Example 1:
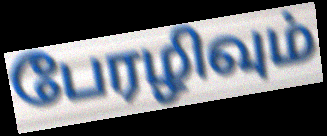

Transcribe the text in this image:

பேரழிவும்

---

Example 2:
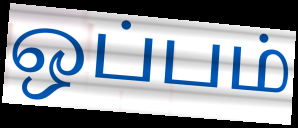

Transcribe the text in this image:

ஒப்பம்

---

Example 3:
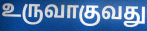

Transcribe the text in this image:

உருவாகுவது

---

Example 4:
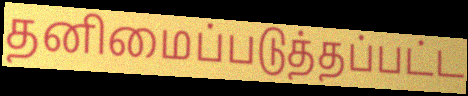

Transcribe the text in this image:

தனிமைப்படுத்தப்பட்ட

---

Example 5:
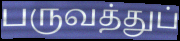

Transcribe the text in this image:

பருவத்துப்